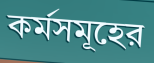
কর্মসমূহের